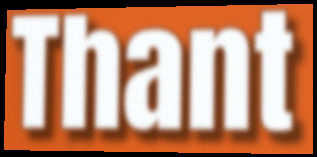
Thant